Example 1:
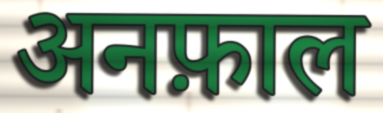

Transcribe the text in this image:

अनफ़ाल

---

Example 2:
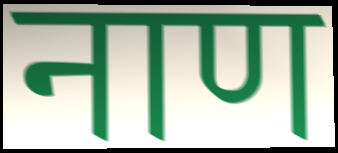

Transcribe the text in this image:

नाण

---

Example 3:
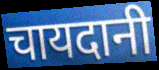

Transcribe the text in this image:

चायदानी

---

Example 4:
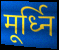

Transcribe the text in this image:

मूर्ध्नि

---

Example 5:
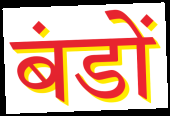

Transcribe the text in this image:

बंडों